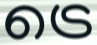
ട്രെ